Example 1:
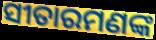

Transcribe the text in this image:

ସୀତାରମଣଙ୍କ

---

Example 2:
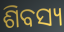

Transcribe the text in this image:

ଶିବସ୍ଯ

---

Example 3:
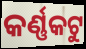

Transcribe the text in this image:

କର୍ଣ୍ଣକଟୁ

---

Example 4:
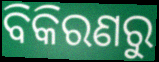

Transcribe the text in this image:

ବିକିରଣରୁ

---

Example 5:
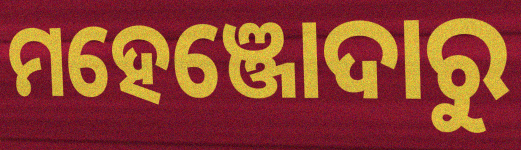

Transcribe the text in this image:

ମହେଞ୍ଜୋଦାରୁ